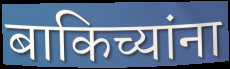
बाकिच्यांना